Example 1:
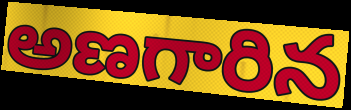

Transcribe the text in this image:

అణగారిన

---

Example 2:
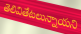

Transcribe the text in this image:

తెలివితేటలున్నాయని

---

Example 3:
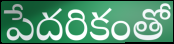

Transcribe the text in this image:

పేదరికంతో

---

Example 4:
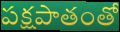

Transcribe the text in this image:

పక్షపాతంతో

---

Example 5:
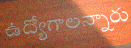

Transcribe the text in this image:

ఉద్యోగాలన్నారు